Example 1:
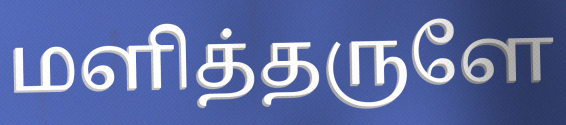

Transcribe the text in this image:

மளித்தருளே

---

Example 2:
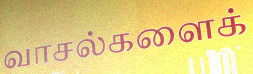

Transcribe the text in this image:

வாசல்களைக்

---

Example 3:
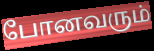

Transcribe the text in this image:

போனவரும்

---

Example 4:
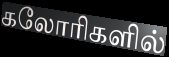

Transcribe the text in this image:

கலோரிகளில்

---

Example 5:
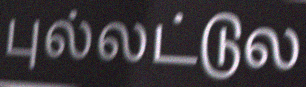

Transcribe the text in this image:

புல்லட்டுல